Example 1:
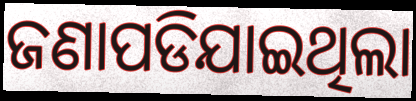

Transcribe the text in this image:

ଜଣାପଡିଯାଇଥିଲା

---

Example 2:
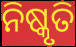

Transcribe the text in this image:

ନିଷ୍କୃତି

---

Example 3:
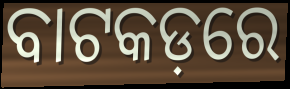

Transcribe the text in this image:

ବାଟକଡ଼ରେ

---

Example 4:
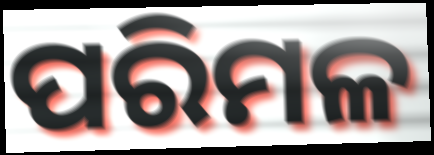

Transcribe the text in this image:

ପରିମଳ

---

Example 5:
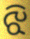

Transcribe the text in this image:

ଝି